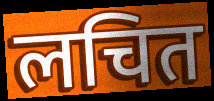
लचित